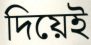
দিয়েই